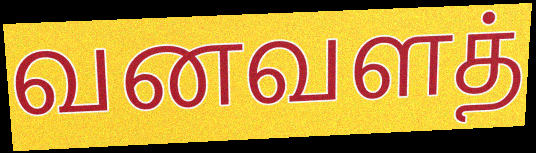
வனவளத்